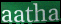
aatha